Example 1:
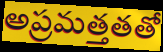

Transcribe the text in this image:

అప్రమత్తతతో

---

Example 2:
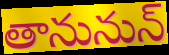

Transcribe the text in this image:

తానునున్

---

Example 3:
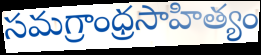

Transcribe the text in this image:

సమగ్రాంధ్రసాహిత్యం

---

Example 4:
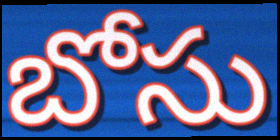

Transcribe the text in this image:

బోసు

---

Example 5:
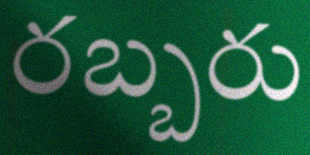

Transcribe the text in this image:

రబ్బరు